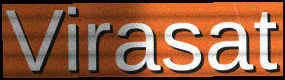
Virasat